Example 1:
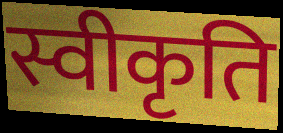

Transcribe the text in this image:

स्‍वीकृति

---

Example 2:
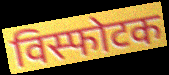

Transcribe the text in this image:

विस्फोटक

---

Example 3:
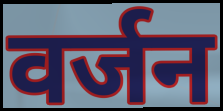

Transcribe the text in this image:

वर्जन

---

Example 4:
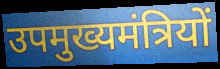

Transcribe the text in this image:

उपमुख्यमंत्रियों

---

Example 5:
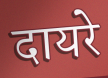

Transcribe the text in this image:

दायरे